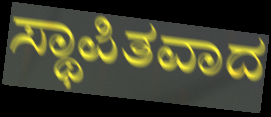
ಸ್ಥಾಪಿತವಾದ